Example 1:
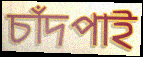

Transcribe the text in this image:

চাঁদপাই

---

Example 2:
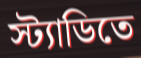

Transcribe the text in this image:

স্ট্যাডিতে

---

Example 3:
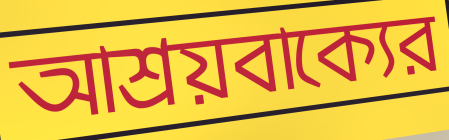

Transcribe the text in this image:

আশ্রয়বাক্যের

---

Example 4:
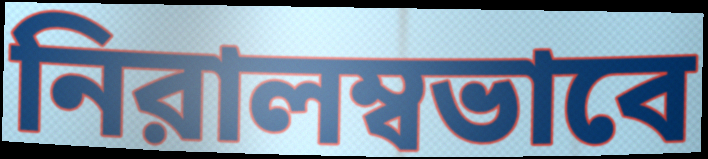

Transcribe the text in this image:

নিরালম্বভাবে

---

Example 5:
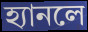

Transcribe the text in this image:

হ্যানলে